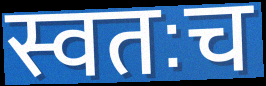
स्वतःच